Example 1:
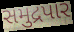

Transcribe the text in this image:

સમુદ્રપાર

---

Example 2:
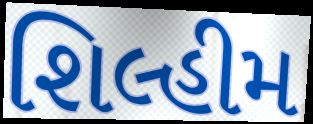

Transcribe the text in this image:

શિલ્હીમ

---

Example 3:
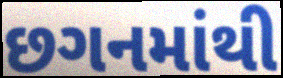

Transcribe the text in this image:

છગનમાંથી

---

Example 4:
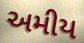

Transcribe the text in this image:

અમીય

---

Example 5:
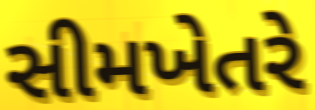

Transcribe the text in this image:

સીમખેતરે